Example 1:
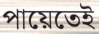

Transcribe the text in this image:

পায়েতেই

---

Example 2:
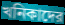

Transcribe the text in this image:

খনিকাদের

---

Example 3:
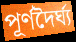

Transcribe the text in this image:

পূর্ণদৈর্ঘ্য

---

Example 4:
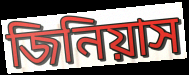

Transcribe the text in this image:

জিনিয়াস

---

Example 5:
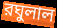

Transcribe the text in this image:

রঘুলাল